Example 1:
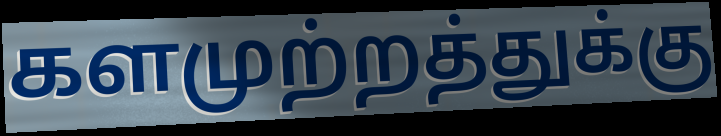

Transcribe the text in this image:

களமுற்றத்துக்கு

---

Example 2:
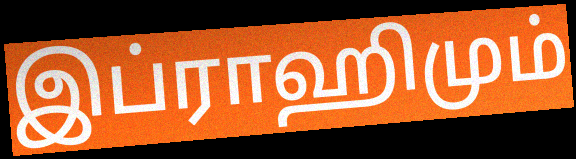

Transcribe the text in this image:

இப்ராஹிமும்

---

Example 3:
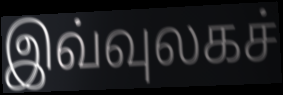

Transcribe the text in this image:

இவ்வுலகச்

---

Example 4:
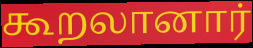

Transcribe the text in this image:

கூறலானார்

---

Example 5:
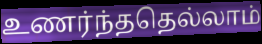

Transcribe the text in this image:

உணர்ந்ததெல்லாம்